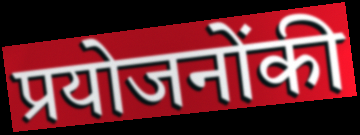
प्रयोजनोंकी